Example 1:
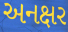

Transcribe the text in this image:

અનક્ષર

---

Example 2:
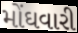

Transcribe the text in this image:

મોંઘવારી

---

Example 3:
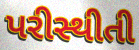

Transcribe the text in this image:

પરીસ્થીતી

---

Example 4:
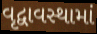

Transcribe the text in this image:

વૃદ્વાવસ્થામાં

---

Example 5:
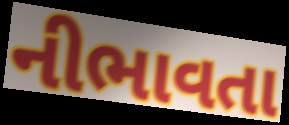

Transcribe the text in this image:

નીભાવતા